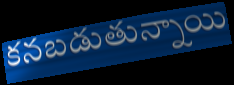
కనబడుతున్నాయి